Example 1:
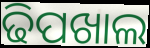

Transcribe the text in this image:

ଢିପଖାଲ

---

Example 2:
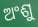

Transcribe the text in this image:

ଅଂଶୁ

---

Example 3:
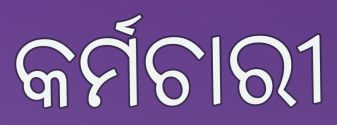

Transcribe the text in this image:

କର୍ମଚାରୀ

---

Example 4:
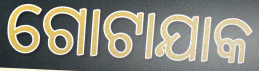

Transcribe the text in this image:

ଗୋଟାଯାକ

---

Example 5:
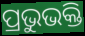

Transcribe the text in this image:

ପ୍ରଭୁଭକ୍ତି